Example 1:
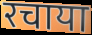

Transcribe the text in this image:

रचाया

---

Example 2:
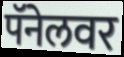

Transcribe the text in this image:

पॅनेलवर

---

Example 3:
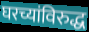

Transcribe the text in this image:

घरच्यांविरुद्ध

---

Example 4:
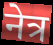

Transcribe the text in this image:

नेत्र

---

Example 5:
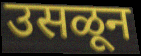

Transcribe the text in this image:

उसळून